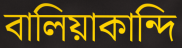
বালিয়াকান্দি